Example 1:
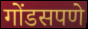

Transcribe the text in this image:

गोंडसपणे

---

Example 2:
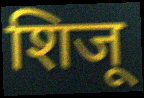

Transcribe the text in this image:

शिजू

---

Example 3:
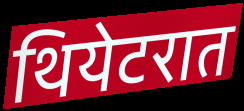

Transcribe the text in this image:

थियेटरात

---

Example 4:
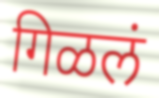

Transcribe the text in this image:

गिळलं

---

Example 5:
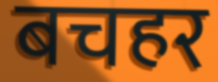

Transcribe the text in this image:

बचहर